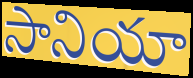
సానియా